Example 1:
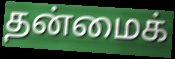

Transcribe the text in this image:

தன்மைக்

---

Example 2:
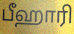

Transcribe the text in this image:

பீஹாரி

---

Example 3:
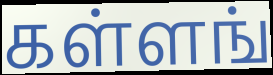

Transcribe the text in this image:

கள்ளங்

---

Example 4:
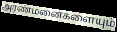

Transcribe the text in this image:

அரண்மனைகளையும்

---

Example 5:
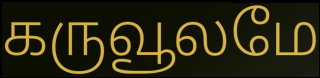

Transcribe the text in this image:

கருவூலமே